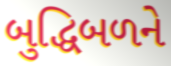
બુદ્ધિબળને